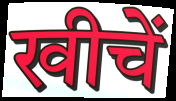
खीचें